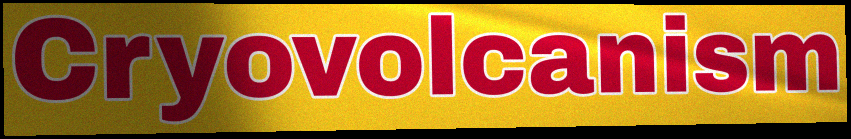
Cryovolcanism